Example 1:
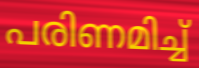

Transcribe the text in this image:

പരിണമിച്ച്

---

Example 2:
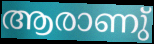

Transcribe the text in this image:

ആരാണു്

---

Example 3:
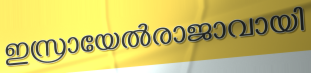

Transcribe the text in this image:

ഇസ്രായേൽരാജാവായി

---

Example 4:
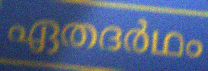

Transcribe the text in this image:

ഏതദർഥം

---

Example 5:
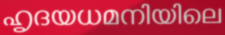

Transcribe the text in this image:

ഹൃദയധമനിയിലെ